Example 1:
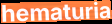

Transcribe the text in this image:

hematuria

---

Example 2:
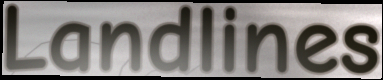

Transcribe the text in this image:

Landlines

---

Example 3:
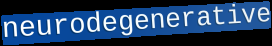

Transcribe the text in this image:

neurodegenerative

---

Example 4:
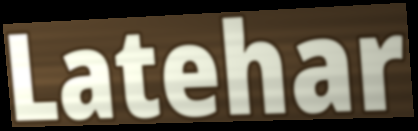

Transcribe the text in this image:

Latehar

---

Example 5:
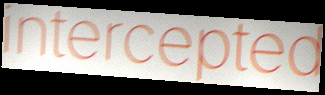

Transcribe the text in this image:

intercepted